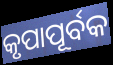
କୃପାପୂର୍ବକ